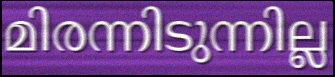
മിരന്നിടുന്നില്ല